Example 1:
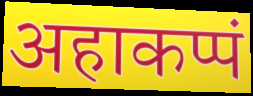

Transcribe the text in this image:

अहाकप्पं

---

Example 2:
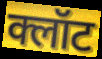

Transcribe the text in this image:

क्‍लॉट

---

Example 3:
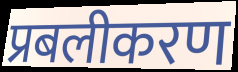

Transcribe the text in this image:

प्रबलीकरण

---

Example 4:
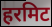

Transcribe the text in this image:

हरमिट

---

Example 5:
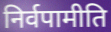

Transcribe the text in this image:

निर्वपामीति